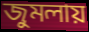
জুমলায়